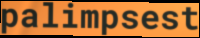
palimpsest